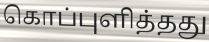
கொப்புளித்தது